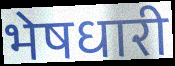
भेषधारी